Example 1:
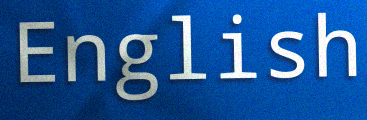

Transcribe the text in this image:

English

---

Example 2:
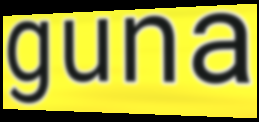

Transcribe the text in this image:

guna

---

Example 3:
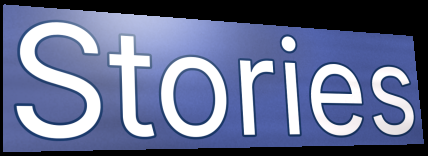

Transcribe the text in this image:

Stories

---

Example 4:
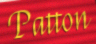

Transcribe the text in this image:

Patton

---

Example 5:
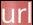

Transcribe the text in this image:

url